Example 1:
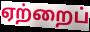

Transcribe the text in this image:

ஏற்றைப்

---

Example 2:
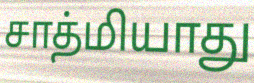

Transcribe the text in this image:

சாத்மியாது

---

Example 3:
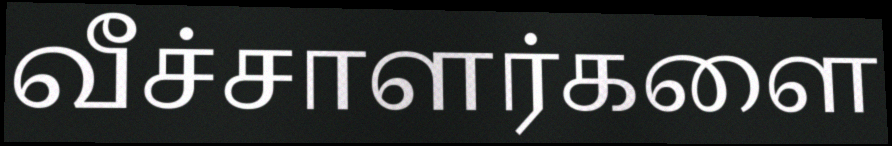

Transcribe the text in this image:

வீச்சாளர்களை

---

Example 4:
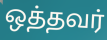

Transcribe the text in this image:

ஒத்தவர்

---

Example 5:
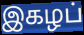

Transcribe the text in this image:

இகழப்